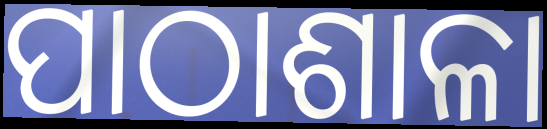
ପାଠାଶାଳା